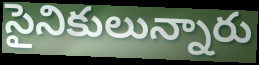
సైనికులున్నారు